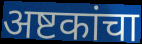
अष्टकांचा